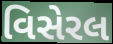
વિસેરલ